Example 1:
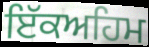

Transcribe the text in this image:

ਇੱਕਅਹਿਮ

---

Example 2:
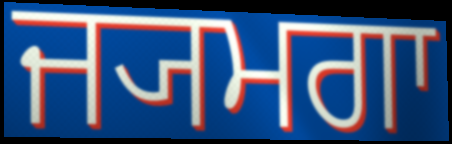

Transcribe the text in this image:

ਜ੍ਯਮਗਾ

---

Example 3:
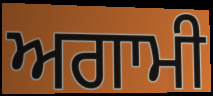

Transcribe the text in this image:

ਅਗਾਮੀ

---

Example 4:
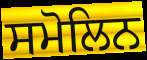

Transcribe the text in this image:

ਸਮੋਲਿਨ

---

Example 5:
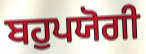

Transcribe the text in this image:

ਬਹੁਪਯੋਗੀ